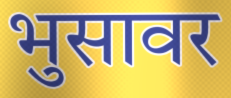
भुसावर